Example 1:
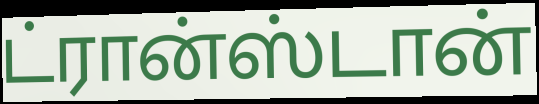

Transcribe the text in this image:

ட்ரான்ஸ்டான்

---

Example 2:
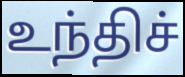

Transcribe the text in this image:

உந்திச்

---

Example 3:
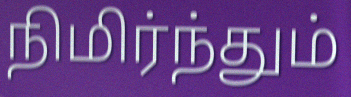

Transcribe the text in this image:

நிமிர்ந்தும்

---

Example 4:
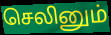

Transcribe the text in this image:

செலினும்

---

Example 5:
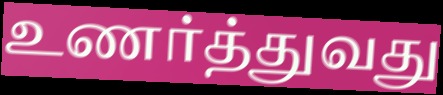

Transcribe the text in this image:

உணர்த்துவது